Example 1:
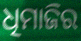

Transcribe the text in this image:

ଧିମାଜିର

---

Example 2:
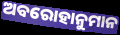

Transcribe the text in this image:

ଅବରୋହାନୁମାନ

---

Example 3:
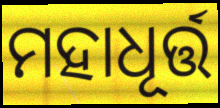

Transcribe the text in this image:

ମହାଧୂର୍ତ୍ତ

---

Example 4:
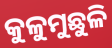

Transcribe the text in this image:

କୁଳୁମୁଛୁଳି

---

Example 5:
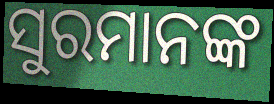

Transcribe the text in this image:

ସୁରମାନଙ୍କ